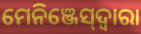
ମେନିଞ୍ଜେସ୍‌ଦ୍ୱାରା